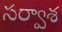
సర్వాశ